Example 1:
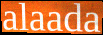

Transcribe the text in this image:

alaada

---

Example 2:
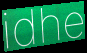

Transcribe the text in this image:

idhe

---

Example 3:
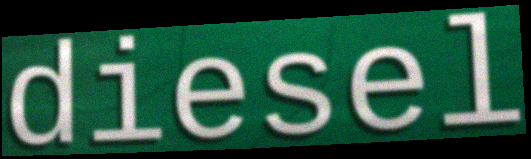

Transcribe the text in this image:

diesel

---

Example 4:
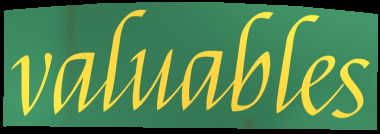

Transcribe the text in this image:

valuables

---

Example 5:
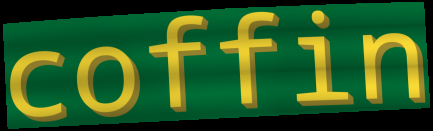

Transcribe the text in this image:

coffin